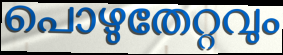
പൊഴുതേറ്റവും